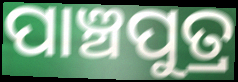
ପାଞ୍ଚପୁତ୍ର